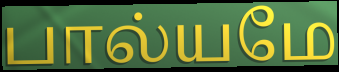
பால்யமே